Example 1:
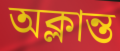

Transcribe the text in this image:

অক্লান্ত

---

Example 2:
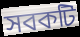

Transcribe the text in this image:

সবকটি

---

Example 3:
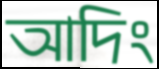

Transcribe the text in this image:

আদিং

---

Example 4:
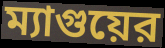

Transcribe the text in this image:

ম্যাগুয়ের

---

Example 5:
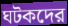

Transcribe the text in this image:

ঘটকদের